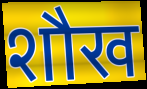
शौख